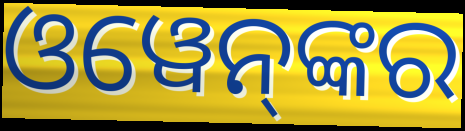
ଓୱେନ୍‌ଙ୍କର